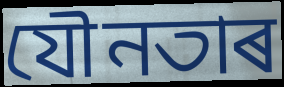
যৌনতাৰ